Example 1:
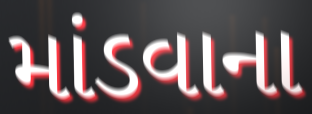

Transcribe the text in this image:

માંડવાના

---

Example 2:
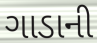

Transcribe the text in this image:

ગાડાની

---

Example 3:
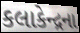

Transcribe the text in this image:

કલાકેન્દ્રના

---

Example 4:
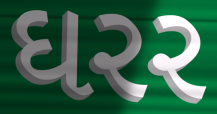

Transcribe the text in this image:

ઘરર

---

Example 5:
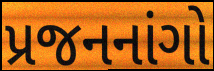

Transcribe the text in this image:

પ્રજનનાંગો